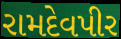
રામદેવપીર